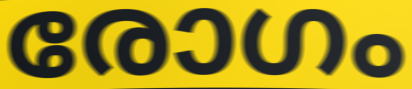
രോഗം